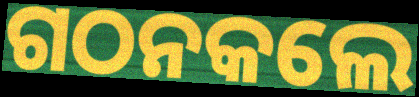
ଗଠନକଲେ